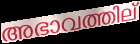
അഭാവത്തില്